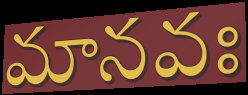
మానవః